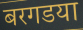
बरगडया